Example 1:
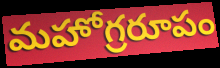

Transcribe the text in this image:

మహోగ్రరూపం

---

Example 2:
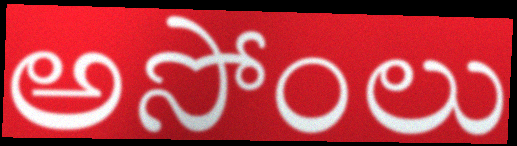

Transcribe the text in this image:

అసోంలు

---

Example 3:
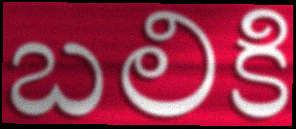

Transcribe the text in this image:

బలికి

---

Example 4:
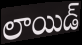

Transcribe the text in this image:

లాయిడ్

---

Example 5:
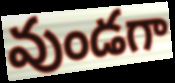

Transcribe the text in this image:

వుండగా